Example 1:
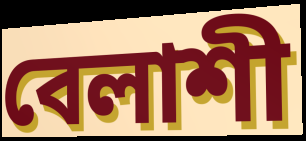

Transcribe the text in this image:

বেলাশী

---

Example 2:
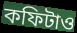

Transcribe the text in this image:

কফিটাও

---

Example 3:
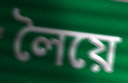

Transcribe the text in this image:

লৈয়ে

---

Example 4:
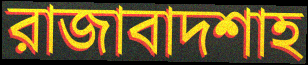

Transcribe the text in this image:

রাজাবাদশাহ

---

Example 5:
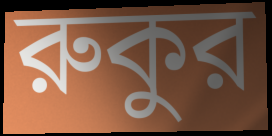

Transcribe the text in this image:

রুকুর